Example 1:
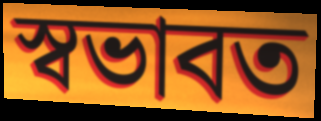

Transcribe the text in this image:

স্বভাবত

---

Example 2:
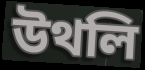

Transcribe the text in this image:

উথলি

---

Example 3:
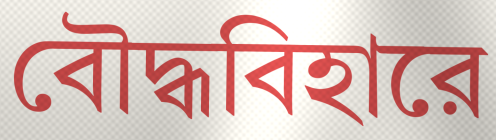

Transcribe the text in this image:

বৌদ্ধবিহারে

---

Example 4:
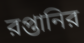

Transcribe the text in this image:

রপ্তানির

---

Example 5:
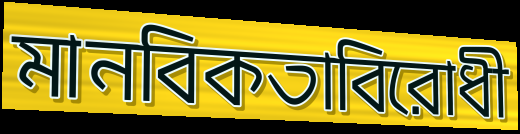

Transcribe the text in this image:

মানবিকতাবিরোধী